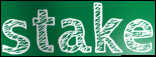
stake